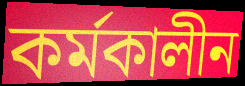
কর্মকালীন